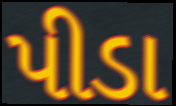
પીડા